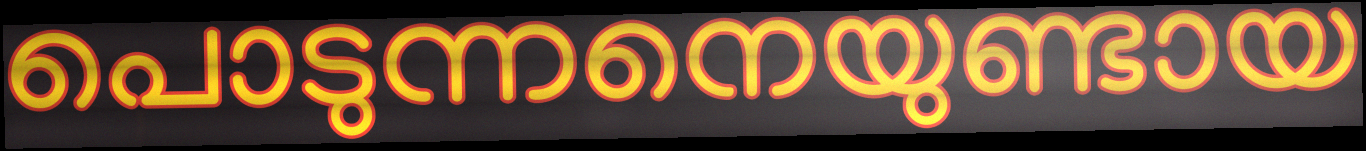
പൊടുന്നനെയുണ്ടായ